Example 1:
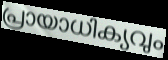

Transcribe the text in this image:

പ്രായാധിക്യവും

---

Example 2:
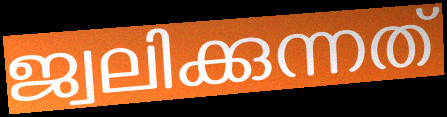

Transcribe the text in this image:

ജ്വലിക്കുന്നത്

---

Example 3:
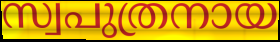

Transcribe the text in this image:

സ്വപുത്രനായ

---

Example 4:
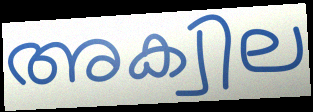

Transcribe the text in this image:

അക്വില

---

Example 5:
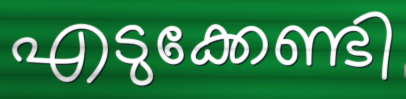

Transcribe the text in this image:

എടുക്കേണ്ടി